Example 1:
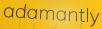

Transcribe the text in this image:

adamantly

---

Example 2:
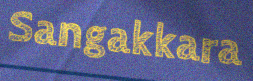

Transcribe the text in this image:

Sangakkara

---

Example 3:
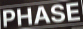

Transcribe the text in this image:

PHASE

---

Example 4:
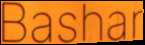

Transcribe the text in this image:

Bashar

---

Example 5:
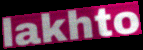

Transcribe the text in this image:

lakhto